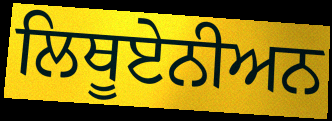
ਲਿਥੂਏਨੀਅਨ